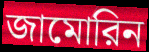
জামোরিন